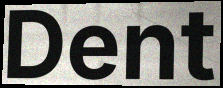
Dent